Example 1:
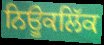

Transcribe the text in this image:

ਨਿਊਕਲਿੱਕ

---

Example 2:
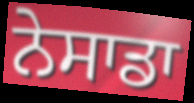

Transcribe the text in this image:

ਨੇਸਾਡਾ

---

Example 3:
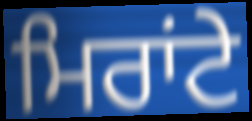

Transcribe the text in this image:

ਮਿਰਾਂਟੇ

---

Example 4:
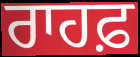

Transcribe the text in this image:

ਰਾਹਫ਼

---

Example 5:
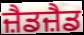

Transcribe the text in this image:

ਜ਼ੈਡਜ਼ੈਡ